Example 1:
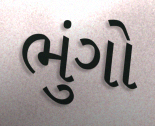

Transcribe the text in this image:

ભુંગો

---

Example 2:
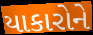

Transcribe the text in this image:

યાકારોને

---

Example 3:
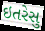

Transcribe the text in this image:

ઇતરેસુ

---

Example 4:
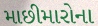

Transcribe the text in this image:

માછીમારોના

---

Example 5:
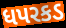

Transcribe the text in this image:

ધપરકડ